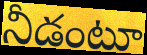
నీడంటూ